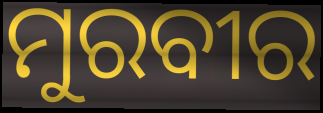
ମୁରବୀର